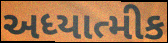
અધ્યાત્મીક